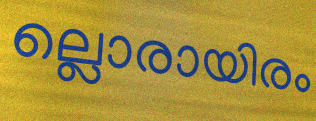
ല്ലൊരായിരം